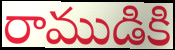
రాముడికి